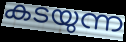
കടയുന്ന